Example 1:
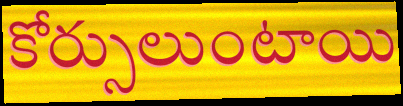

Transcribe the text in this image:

కోర్సులుంటాయి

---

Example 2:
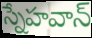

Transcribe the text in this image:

స్నేహవాన్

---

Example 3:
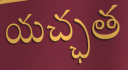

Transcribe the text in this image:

యచ్ఛత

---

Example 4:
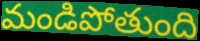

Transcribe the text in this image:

మండిపోతుంది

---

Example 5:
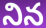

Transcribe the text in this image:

నిన